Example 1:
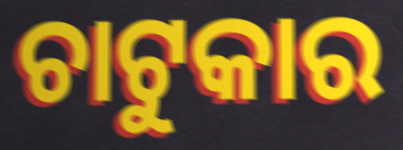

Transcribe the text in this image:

ଚାଟୁକାର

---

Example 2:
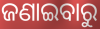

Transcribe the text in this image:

ଜଣାଇବାରୁ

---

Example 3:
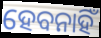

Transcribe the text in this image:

ହେବନାହିଁ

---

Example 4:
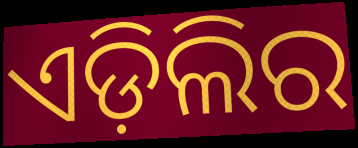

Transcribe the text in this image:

ଏଡ଼ିଲିର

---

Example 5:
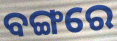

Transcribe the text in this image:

ବଙ୍ଗରେ